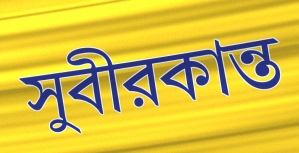
সুবীরকান্ত